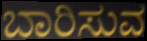
ಬಾರಿಸುವ